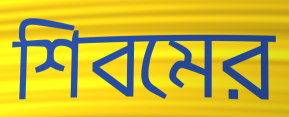
শিবমের